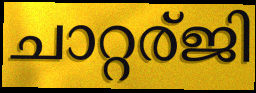
ചാറ്റര്ജി